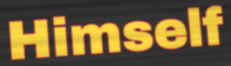
Himself